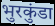
भुरकुंडा